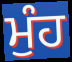
ਮੁੰਹ